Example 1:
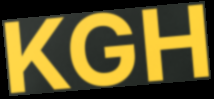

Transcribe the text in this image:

KGH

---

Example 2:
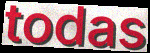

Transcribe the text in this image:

todas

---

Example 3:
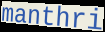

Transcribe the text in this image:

manthri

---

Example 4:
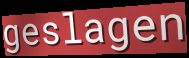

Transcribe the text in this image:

geslagen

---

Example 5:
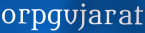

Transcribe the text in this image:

orpgujarat